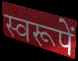
स्वरूपें